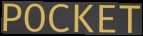
POCKET